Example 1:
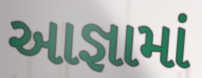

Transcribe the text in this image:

આજ્ઞામાં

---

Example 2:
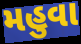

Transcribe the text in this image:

મહુવા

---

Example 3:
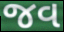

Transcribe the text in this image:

જવ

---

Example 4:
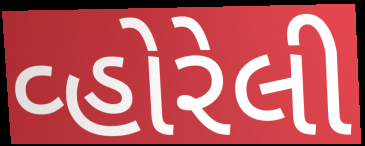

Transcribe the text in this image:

વ્હોરેલી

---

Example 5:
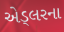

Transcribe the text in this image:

એડ્લરના